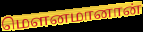
மௌனமானான்